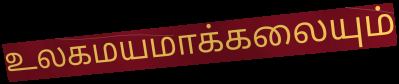
உலகமயமாக்கலையும்